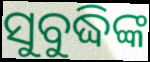
ସୁବୁଦ୍ଧିଙ୍କ